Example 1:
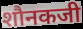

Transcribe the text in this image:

शौनकजी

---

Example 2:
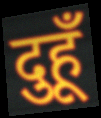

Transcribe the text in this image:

दुहूँ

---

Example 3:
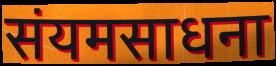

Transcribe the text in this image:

संयमसाधना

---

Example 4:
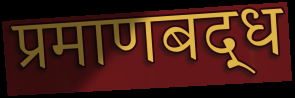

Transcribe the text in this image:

प्रमाणबद्ध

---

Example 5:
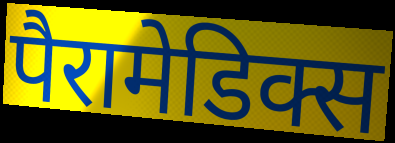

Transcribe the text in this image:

पैरामेडिक्स